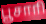
பூசாரி